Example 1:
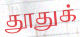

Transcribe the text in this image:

தூதுக்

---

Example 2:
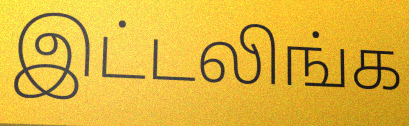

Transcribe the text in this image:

இட்டலிங்க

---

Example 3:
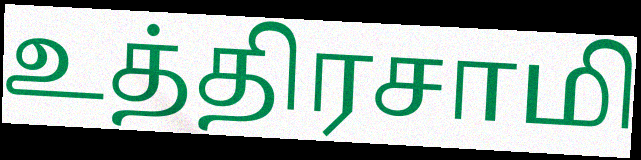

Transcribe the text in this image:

உத்திரசாமி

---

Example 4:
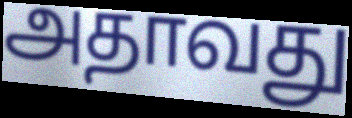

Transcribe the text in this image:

அதாவது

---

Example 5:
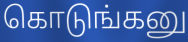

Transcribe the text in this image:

கொடுங்கனு